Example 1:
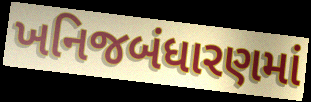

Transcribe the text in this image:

ખનિજબંધારણમાં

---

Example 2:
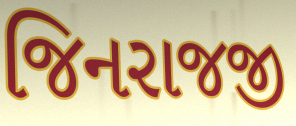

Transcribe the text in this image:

જિનરાજજી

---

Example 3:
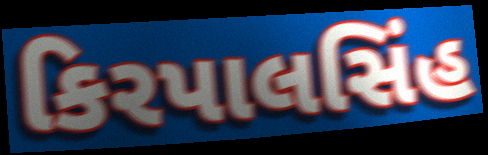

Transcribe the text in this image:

કિરપાલસિંહ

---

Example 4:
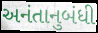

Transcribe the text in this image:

અનંતાનુબંધી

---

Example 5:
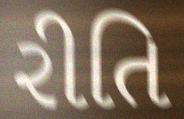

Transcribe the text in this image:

રીતિ